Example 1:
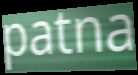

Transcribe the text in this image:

patna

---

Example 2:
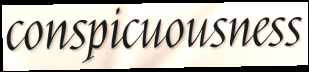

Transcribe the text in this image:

conspicuousness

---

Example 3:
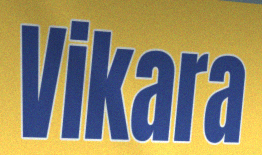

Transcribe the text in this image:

Vikara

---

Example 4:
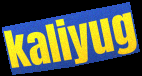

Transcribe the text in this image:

kaliyug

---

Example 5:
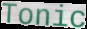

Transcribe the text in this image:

Tonic